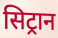
सिट्रान